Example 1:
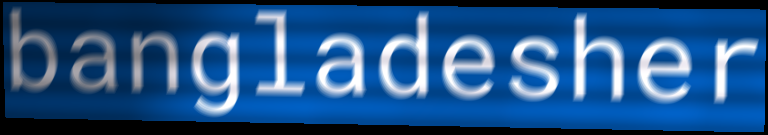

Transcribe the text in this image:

bangladesher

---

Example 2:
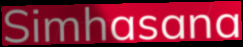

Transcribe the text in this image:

Simhasana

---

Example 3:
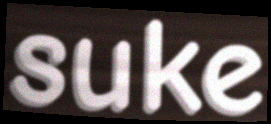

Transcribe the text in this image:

suke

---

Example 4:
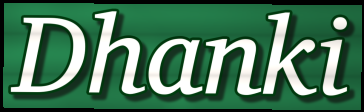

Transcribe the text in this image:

Dhanki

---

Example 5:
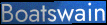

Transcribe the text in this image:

Boatswain